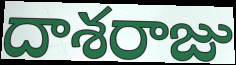
దాశరాజు